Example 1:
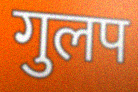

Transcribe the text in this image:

गुलप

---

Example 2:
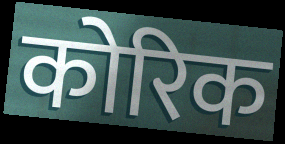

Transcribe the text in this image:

कोरिक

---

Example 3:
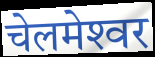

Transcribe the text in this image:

चेलमेश्‍वर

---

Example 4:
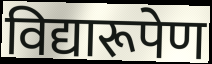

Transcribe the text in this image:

विद्यारूपेण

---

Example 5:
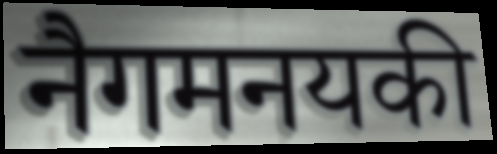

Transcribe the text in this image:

नैगमनयकी